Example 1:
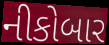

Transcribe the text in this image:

નીકોબાર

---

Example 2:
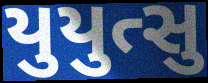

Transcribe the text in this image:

યુયુત્સુ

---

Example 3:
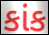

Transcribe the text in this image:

કાંક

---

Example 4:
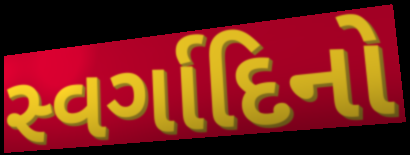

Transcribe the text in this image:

સ્વર્ગાદિનો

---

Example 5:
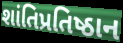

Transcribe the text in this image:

શાંતિપ્રતિષ્ઠાન